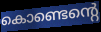
കൊണ്ടെന്റെ